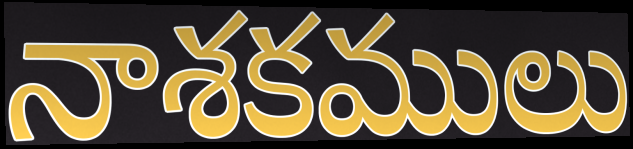
నాశకములు